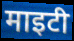
माइटी